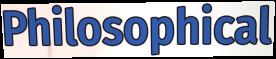
Philosophical